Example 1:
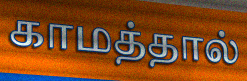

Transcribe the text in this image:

காமத்தால்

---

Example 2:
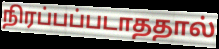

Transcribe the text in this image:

நிரப்பப்படாததால்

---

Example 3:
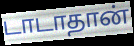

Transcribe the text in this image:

டாடாதான்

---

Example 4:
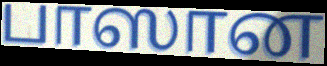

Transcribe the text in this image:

பாஸான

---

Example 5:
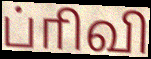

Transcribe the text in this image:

ப்ரிவி